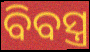
ବିବସ୍ତ୍ର